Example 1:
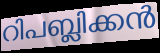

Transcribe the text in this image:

റിപബ്ലിക്കൻ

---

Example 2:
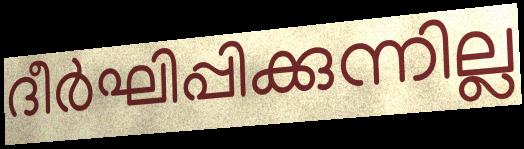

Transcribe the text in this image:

ദീർഘിപ്പിക്കുന്നില്ല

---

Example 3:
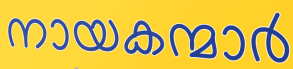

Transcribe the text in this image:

നായകന്മാർ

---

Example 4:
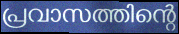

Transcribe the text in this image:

പ്രവാസത്തിന്റെ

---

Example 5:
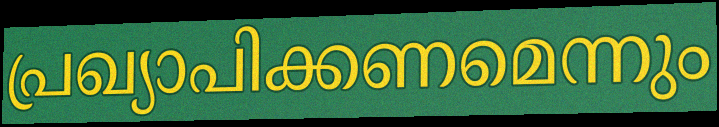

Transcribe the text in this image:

പ്രഖ്യാപിക്കണമെന്നും